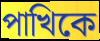
পাখিকে